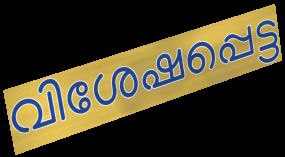
വിശേഷപ്പെട്ട